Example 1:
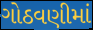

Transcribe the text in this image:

ગોઠવણીમાં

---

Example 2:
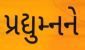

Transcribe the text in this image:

પ્રદ્યુમ્નને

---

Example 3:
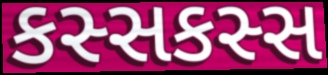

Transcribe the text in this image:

કસ્સકસ્સ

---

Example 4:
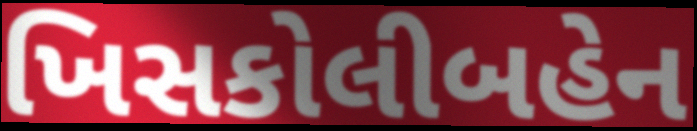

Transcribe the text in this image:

ખિસકોલીબહેન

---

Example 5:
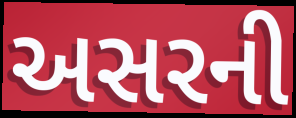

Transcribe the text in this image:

અસરની